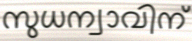
സുധന്വാവിന്